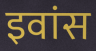
इवांस